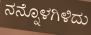
ನನ್ನೊಳಗಿಳಿದು